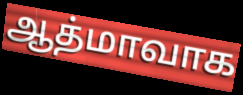
ஆத்மாவாக